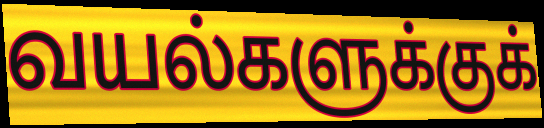
வயல்களுக்குக்